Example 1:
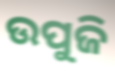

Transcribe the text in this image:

ଉପୁଜି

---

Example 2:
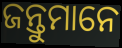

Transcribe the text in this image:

ଜନ୍ତୁମାନେ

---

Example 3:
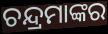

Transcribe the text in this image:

ଚନ୍ଦ୍ରମାଙ୍କର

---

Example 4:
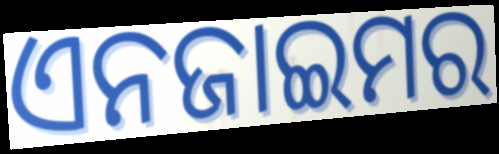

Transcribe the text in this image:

ଏନଜାଇମର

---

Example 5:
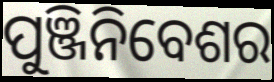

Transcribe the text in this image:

ପୁଞ୍ଜିନିବେଶର